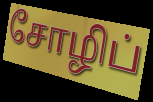
சோழிப்